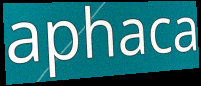
aphaca